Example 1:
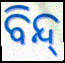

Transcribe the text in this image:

ବିନ୍ଦ୍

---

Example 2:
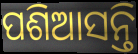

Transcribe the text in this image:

ପଶିଆସନ୍ତି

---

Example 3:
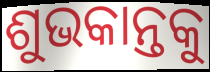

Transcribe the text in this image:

ଶୁଭକାନ୍ତକୁ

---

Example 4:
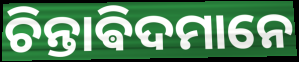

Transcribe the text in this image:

ଚିନ୍ତାଵିଦମାନେ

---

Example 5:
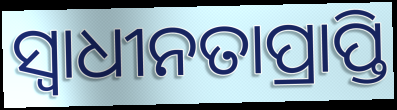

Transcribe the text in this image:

ସ୍ୱାଧୀନତାପ୍ରାପ୍ତି